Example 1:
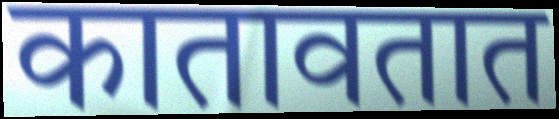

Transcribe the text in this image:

कातावतात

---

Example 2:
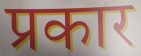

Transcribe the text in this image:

प्रकार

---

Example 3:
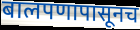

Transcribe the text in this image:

बालपणापासूनच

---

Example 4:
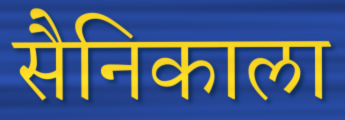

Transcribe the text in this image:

सैनिकाला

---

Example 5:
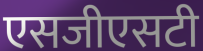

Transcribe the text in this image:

एसजीएसटी